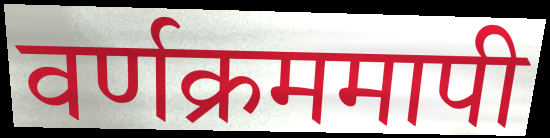
वर्णक्रममापी